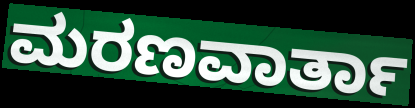
ಮರಣವಾರ್ತಾ